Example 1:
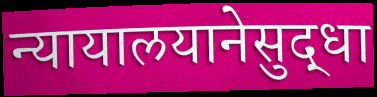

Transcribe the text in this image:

न्यायालयानेसुद्धा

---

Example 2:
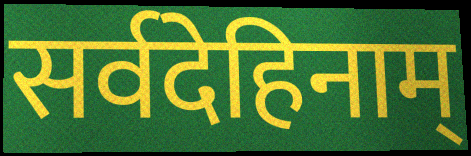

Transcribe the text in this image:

सर्वदेहिनाम्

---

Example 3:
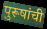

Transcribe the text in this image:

पुरूषांची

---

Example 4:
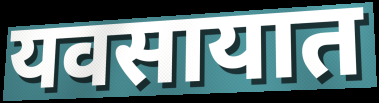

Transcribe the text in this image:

यवसायात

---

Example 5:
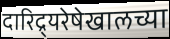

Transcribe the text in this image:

दारिद्र्यरेषेखालच्या